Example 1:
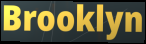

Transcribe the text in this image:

Brooklyn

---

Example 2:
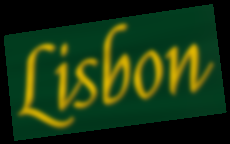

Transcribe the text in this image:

Lisbon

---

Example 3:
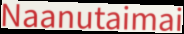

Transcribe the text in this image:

Naanutaimai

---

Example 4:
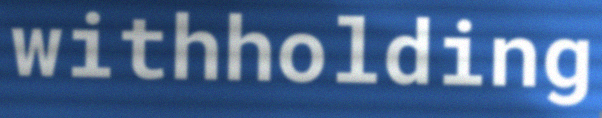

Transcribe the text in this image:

withholding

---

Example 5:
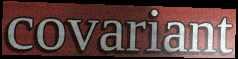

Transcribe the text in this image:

covariant